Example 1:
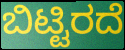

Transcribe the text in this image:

ಬಿಟ್ಟಿರದೆ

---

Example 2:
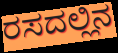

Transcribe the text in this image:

ರಸದಲ್ಲಿನ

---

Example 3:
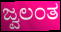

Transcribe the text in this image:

ಜ್ವಲಂತ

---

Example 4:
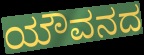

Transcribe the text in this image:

ಯೌವನದ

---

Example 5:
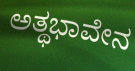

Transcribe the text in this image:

ಅತ್ಥಭಾವೇನ